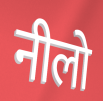
नीलो